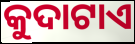
କୁଦାଟାଏ